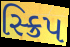
સ્ક્રિપ